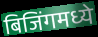
बिजिंगमध्ये